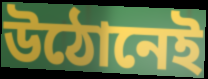
উঠোনেই